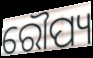
ରୌପ୍ୟ